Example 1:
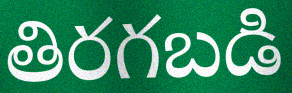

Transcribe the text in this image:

తిరగబడి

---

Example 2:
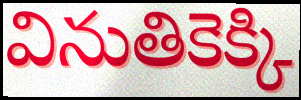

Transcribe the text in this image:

వినుతికెక్కి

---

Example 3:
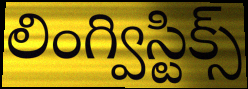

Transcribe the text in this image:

లింగ్విస్టిక్స్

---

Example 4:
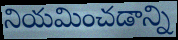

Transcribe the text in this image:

నియమించడాన్ని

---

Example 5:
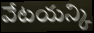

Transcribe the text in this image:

వేటయన్కి